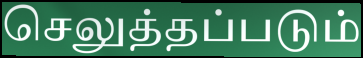
செலுத்தப்படும்